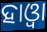
ହାଓ୍ୱା